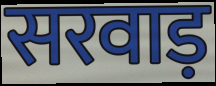
सरवाड़